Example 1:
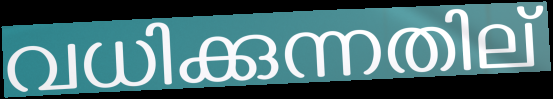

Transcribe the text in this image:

വധിക്കുന്നതില്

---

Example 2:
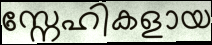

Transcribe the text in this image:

സ്നേഹികളായ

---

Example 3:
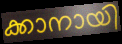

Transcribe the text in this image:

ക്കാനായി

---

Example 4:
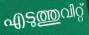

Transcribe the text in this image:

എടുത്തുവിറ്റ്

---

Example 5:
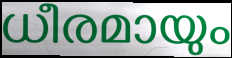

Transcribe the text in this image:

ധീരമായും